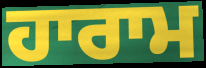
ਹਾਰਾਮ